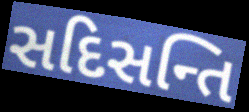
સદિસન્તિ